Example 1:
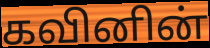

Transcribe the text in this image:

கவினின்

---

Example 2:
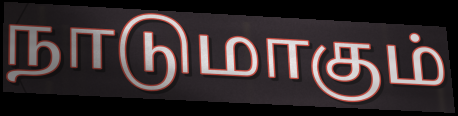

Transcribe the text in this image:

நாடுமாகும்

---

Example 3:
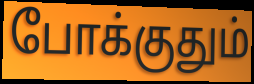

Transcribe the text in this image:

போக்குதும்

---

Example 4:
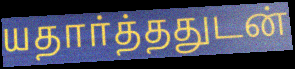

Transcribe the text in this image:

யதார்த்ததுடன்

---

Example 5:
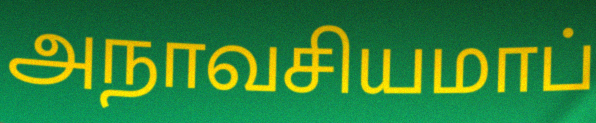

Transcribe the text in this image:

அநாவசியமாப்